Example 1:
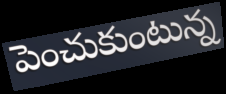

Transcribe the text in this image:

పెంచుకుంటున్న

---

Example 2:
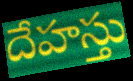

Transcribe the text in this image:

దేహస్తు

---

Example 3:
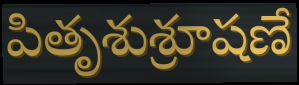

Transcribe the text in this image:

పితృశుశ్రూషణే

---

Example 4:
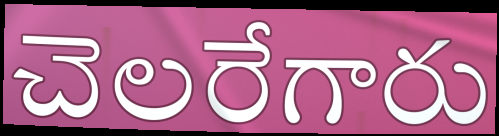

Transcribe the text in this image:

చెలరేగారు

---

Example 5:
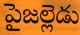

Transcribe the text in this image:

పైజల్లెడు